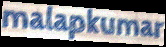
malapkumar